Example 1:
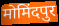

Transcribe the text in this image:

मोमिंदपुर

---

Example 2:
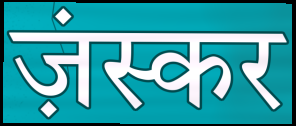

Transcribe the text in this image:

ज़ंस्कर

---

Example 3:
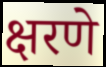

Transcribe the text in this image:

क्षरणे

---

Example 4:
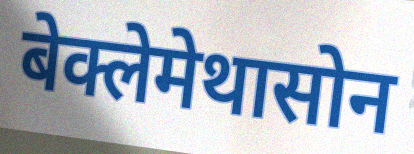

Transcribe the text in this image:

बेक्लेमेथासोन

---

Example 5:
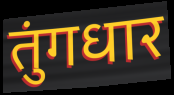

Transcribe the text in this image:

तुंगधार